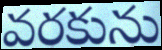
వరకును